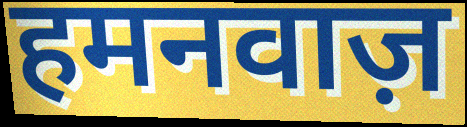
हमनवाज़